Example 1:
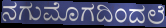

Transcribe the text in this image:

ನಗುಮೊಗದಿಂದಲೆ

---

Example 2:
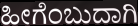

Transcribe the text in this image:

ಹೀಗೆಂಬುದಾಗಿ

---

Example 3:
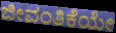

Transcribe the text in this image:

ಜೀವಂತಿಕೆಯೇ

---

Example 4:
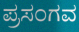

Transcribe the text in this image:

ಪ್ರಸಂಗವ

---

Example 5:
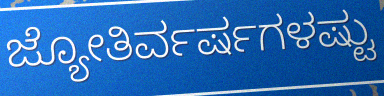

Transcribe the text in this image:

ಜ್ಯೋತಿರ್ವರ್ಷಗಳಷ್ಟು